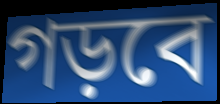
গড়বে